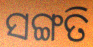
ସଙ୍ଗତି